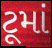
ટૂમાં